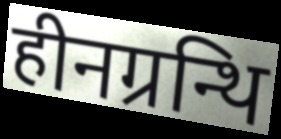
हीनग्रन्थि